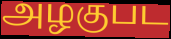
அழகுபட